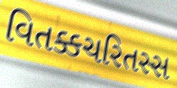
વિતક્કચરિતસ્સ